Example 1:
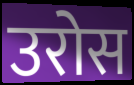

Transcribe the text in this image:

उरोस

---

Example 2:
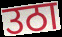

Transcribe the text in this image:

उठा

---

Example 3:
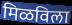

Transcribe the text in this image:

मिळविला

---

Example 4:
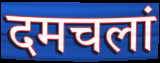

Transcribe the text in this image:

दमचलां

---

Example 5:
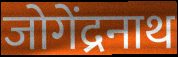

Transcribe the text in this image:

जोगेंद्रनाथ